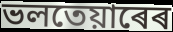
ভলতেয়াৰেৰ